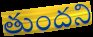
తుందని